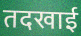
तदखाई